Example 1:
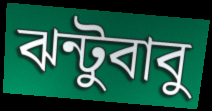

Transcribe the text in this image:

ঝন্টুবাবু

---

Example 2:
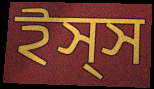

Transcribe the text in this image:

ইস্‌স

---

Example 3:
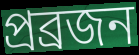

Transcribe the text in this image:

প্রব্রজন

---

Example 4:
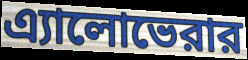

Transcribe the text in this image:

এ্যালোভেরার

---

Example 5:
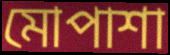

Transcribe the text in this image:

মোপাশা